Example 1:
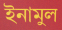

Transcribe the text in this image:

ইনামুল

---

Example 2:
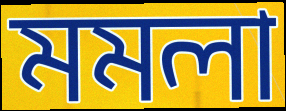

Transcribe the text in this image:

মমলা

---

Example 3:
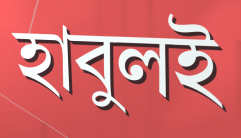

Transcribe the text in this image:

হাবুলই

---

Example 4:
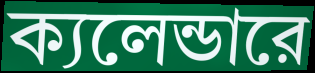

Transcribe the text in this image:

ক্যলেন্ডারে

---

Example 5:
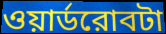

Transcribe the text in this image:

ওয়ার্ডরোবটা